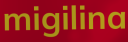
migilina